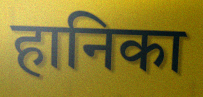
हानिका